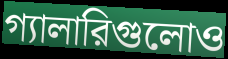
গ্যালারিগুলোও